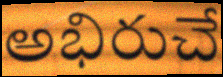
అభిరుచే